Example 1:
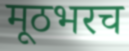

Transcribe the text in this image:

मूठभरच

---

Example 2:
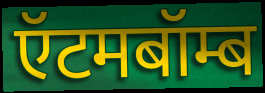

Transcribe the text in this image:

ऍटमबॉम्ब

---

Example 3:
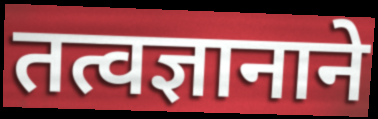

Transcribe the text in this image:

तत्वज्ञानाने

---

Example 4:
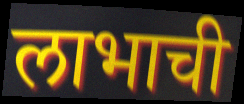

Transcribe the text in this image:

लाभाची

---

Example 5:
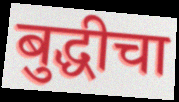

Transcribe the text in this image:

बुद्धीचा